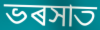
ভৰসাত